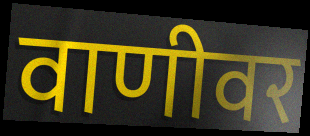
वाणीवर